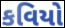
કવિયો